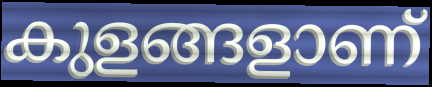
കുളങ്ങളാണ്